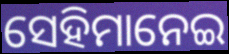
ସେହିମାନେଇ